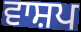
ਵਾਸ਼ਪ